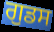
ਗੁਡਸ